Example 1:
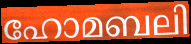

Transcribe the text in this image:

ഹോമബലി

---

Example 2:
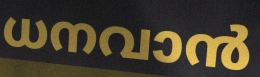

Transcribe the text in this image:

ധനവാൻ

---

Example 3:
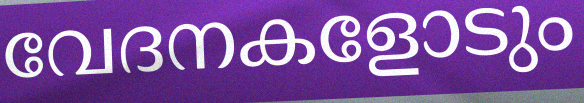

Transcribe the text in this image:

വേദനകളോടും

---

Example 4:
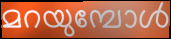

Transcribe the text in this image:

മറയുമ്പോൾ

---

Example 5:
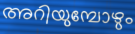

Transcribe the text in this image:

അറിയുമ്പോഴും